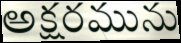
అక్షరమును